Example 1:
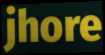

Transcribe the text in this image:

jhore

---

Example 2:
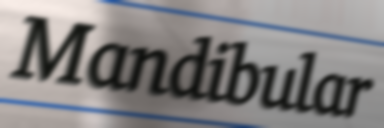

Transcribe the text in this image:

Mandibular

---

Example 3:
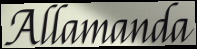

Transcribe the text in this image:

Allamanda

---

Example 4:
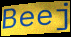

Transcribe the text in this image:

Beej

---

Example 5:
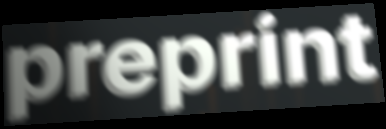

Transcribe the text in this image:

preprint